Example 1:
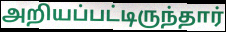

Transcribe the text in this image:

அறியப்பட்டிருந்தார்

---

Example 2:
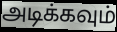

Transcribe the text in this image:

அடிக்கவும்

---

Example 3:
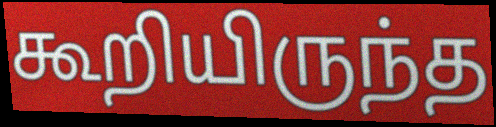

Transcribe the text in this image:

கூறியிருந்த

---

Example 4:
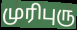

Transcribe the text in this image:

முரிபுரு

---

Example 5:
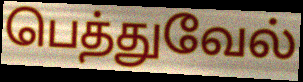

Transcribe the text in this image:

பெத்துவேல்